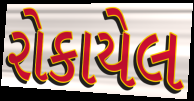
રોકાયેલ